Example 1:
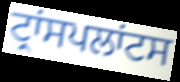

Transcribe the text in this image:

ਟ੍ਰਾਂਸਪਲਾਂਟਸ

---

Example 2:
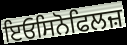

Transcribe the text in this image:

ਇਓਸਿਨੋਫਿਲਜ਼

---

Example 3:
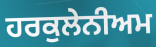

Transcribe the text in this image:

ਹਰਕੁਲੇਨੀਅਮ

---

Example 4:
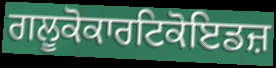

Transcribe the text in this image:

ਗਲੂਕੋਕਾਰਟਿਕੋਇਡਜ਼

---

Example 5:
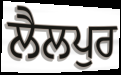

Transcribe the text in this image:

ਲੈਲਪੁਰ